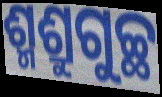
ଶ୍ମଶ୍ରୁଗୁଚ୍ଛ